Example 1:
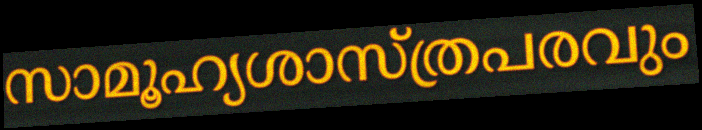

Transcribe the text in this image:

സാമൂഹ്യശാസ്ത്രപരവും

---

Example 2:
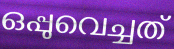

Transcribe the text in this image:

ഒപ്പുവെച്ചത്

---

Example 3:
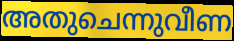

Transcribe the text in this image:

അതുചെന്നുവീണ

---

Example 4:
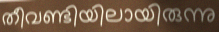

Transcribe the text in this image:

തീവണ്ടിയിലായിരുന്നു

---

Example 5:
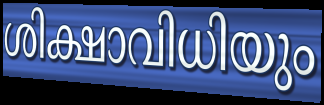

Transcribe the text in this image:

ശിക്ഷാവിധിയും